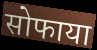
सोफाया